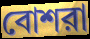
বোশরা